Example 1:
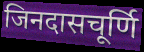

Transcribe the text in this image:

जिनदासचूर्णि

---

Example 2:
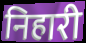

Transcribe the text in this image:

निहारी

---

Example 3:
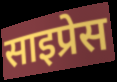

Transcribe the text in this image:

साइप्रेस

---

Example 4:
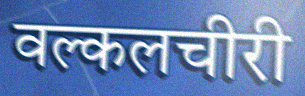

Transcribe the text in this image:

वल्कलचीरी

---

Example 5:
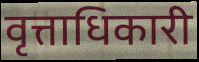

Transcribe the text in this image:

वृत्ताधिकारी